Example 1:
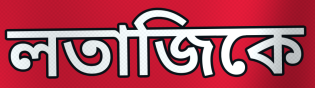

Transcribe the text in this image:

লতাজিকে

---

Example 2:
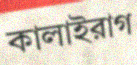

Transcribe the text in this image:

কালাইরাগ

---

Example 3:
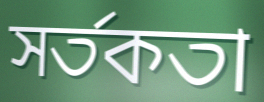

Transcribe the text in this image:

সর্তকতা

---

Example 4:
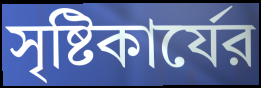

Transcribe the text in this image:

সৃষ্টিকার্যের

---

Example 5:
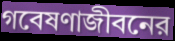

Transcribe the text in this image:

গবেষণাজীবনের